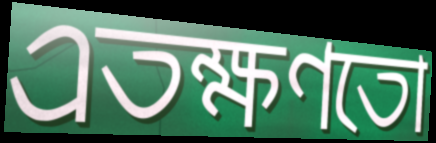
এতক্ষণতো